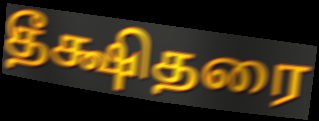
தீக்ஷிதரை